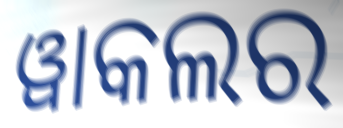
ୱାକଲର